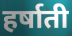
हर्षाती